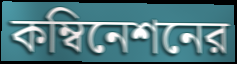
কম্বিনেশনের